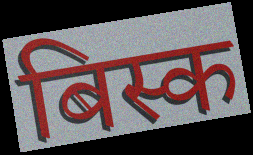
बिस्क